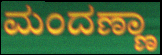
ಮಂದಣ್ಣಾ